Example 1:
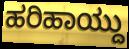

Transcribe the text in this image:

ಹರಿಹಾಯ್ದು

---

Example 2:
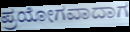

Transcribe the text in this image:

ಪ್ರಯೋಗವಾದಾಗ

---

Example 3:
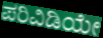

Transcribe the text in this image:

ಪರಿವಿಡಿಯೇ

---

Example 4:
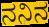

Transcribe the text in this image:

ನನಿನ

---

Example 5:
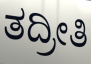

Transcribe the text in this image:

ತದ್ರೀತಿ